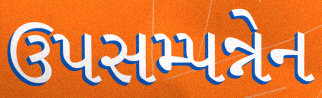
ઉપસમ્પન્નેન